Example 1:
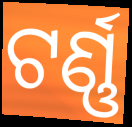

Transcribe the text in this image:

ଟର୍ଣ୍ଣ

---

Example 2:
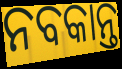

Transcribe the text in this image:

ନବକାନ୍ତ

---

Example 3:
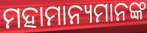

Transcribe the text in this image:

ମହାମାନ୍ୟମାନଙ୍କ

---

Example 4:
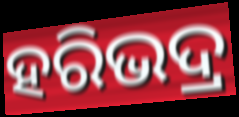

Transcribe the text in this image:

ହରିଭଦ୍ର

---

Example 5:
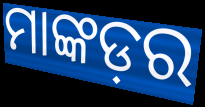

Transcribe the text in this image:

ମାଙ୍କଡ଼ର